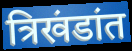
त्रिखंडांत